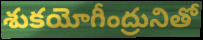
శుకయోగీంద్రునితో